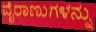
ವೈರಾಣುಗಳನ್ನು